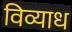
विव्याध